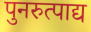
पुनरुत्पाद्य